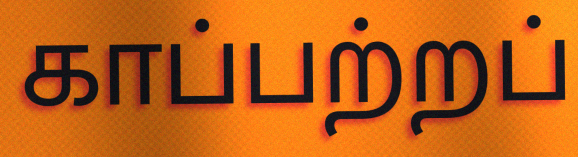
காப்பற்றப்